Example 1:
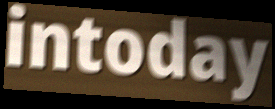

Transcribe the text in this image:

intoday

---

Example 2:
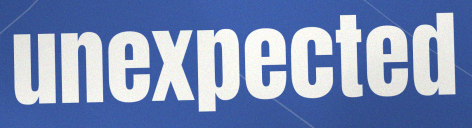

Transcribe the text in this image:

unexpected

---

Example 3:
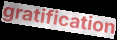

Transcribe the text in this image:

gratification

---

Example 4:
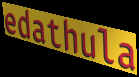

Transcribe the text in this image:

edathula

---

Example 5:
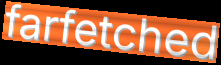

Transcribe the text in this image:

farfetched